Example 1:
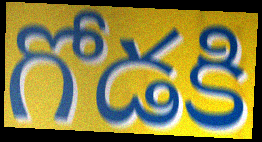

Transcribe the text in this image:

గోడకి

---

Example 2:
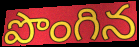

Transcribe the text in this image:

పొంగిన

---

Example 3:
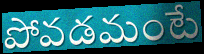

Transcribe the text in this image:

పోవడమంటే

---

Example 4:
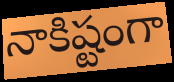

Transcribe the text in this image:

నాకిష్టంగా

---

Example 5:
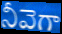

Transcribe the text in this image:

నీవెగా